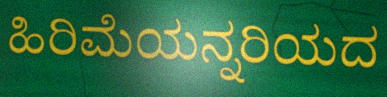
ಹಿರಿಮೆಯನ್ನರಿಯದ